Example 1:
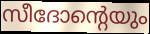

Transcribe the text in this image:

സീദോന്റെയും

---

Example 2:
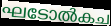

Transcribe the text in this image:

ഘടോൽകച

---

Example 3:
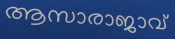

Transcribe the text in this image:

ആസാരാജാവ്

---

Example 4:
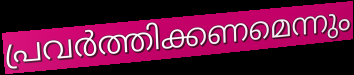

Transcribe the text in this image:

പ്രവർത്തിക്കണമെന്നും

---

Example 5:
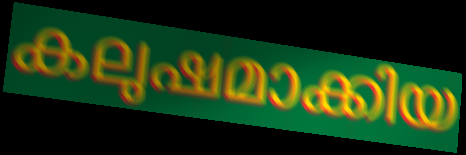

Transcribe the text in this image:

കലുഷമാക്കിയ